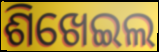
ଶିଖେଇଲ